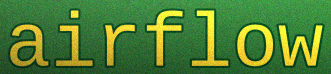
airflow